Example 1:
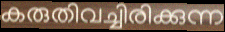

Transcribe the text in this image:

കരുതിവച്ചിരിക്കുന്ന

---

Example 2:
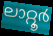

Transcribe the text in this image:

ലാറ്റൂർ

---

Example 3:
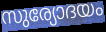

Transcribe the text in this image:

സുര്യോദയം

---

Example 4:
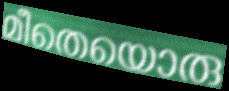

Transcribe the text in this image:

മീതെയൊരു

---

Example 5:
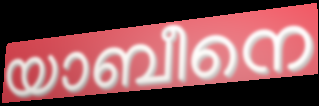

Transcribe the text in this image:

യാബീനെ